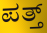
ಪತ್ತ್